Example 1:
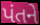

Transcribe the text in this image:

પંતને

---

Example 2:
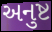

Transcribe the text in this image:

અનુષ્ટ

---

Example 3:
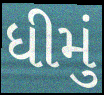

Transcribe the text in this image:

ધીમું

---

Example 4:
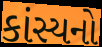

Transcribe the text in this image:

કાંસ્યનો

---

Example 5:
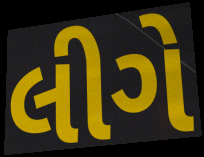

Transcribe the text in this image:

લીગે